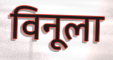
विनूला